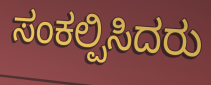
ಸಂಕಲ್ಪಿಸಿದರು